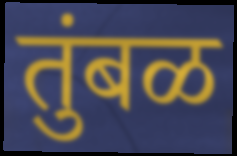
तुंबळ